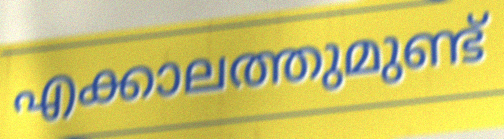
എക്കാലത്തുമുണ്ട്